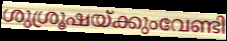
ശുശ്രൂഷയ്ക്കുംവേണ്ടി